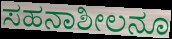
ಸಹನಾಶೀಲನೂ